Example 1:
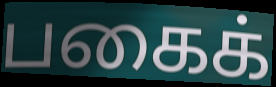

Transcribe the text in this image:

பகைக்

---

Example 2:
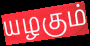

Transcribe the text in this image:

யழகும்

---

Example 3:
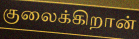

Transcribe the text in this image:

குலைக்கிறான்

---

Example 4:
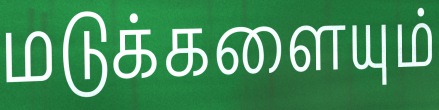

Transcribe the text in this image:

மடுக்களையும்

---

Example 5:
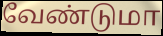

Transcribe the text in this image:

வேண்டுமா